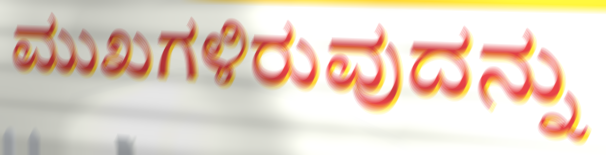
ಮುಖಗಳಿರುವುದನ್ನು